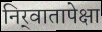
निर्वातापेक्षा